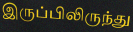
இருப்பிலிருந்து